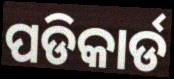
ପଡିକାର୍ଡ